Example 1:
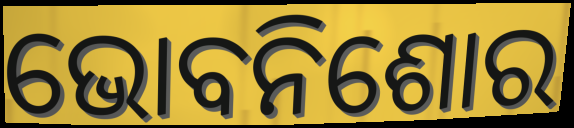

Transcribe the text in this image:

ଭୋବନିଶୋର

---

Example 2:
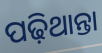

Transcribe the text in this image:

ପଢ଼ିଥାନ୍ତା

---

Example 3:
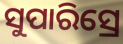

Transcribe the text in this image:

ସୁପାରିସ୍ରେ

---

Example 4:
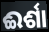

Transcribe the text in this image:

ଈର୍ଶା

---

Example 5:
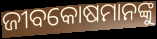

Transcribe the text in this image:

ଜୀବକୋଷମାନଙ୍କୁ